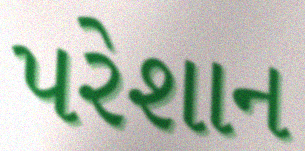
પરેશાન